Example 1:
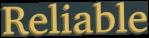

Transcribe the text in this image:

Reliable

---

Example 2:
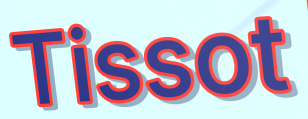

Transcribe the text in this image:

Tissot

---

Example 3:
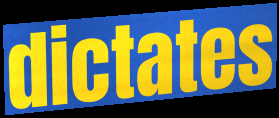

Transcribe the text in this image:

dictates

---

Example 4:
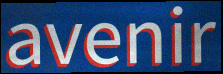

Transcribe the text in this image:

avenir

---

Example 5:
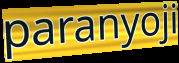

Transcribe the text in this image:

paranyoji